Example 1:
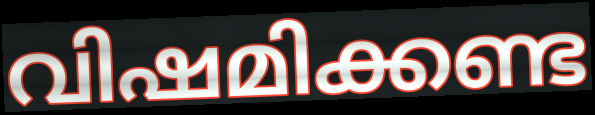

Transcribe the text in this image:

വിഷമിക്കണ്ട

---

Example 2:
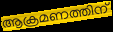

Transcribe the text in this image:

ആക്രമണത്തിന്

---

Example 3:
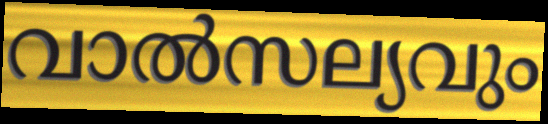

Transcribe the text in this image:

വാൽസല്യവും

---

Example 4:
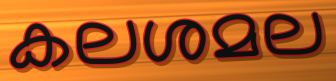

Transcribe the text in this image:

കലശമല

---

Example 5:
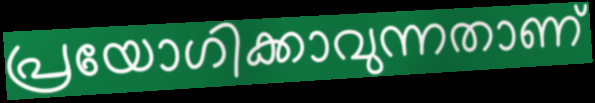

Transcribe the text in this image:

പ്രയോഗിക്കാവുന്നതാണ്